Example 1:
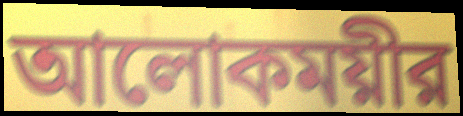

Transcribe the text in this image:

আলোকময়ীর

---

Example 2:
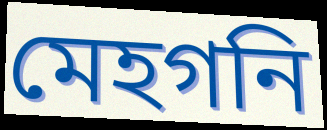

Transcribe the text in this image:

মেহগনি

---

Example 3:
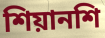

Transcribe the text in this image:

শিয়ানশি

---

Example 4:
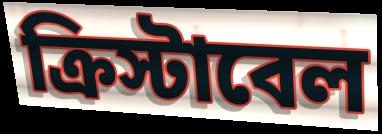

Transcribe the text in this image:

ক্রিস্টাবেল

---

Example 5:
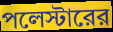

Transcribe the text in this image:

পলেস্টারের